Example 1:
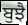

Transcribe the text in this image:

ਬੁਝੈ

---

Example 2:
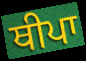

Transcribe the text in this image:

ਥੀਪਾ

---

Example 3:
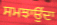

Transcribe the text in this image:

ਸਮਝਾਉਂਦਾ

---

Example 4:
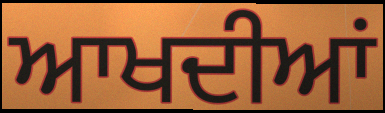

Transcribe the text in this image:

ਆਖਦੀਆਂ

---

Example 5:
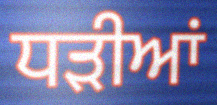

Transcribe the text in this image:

ਧੜੀਆਂ